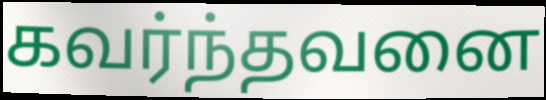
கவர்ந்தவனை